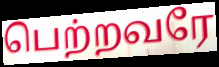
பெற்றவரே